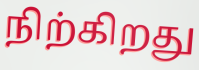
நிற்கிறது